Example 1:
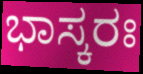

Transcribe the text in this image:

ಭಾಸ್ಕರಃ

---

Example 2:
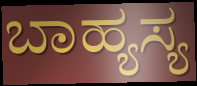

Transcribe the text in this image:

ಬಾಹ್ಯಸ್ಯ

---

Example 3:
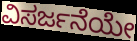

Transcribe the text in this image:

ವಿಸರ್ಜನೆಯೇ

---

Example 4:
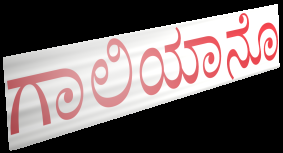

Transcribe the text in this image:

ಗಾಲಿಯಾನೊ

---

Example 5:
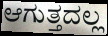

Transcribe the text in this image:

ಆಗುತ್ತದಲ್ಲ